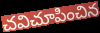
చవిచూపించిన